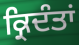
ਕ੍ਰਿਦੰਤਾਂ